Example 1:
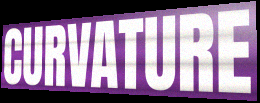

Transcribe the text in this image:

CURVATURE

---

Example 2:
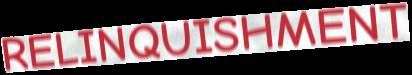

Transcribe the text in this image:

RELINQUISHMENT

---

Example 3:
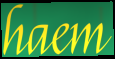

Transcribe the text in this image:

haem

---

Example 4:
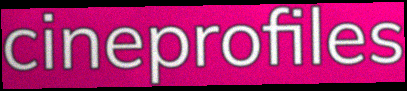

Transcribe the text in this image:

cineprofiles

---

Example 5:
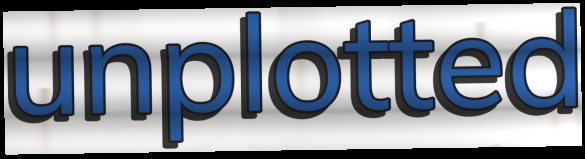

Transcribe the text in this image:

unplotted